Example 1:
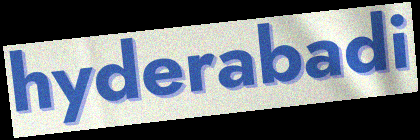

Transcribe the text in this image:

hyderabadi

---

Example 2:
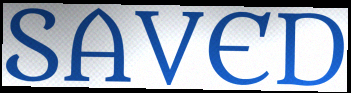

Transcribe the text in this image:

SAVED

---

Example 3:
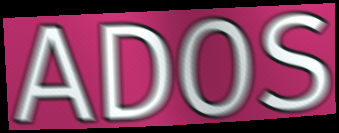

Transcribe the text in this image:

ADOS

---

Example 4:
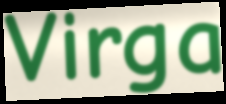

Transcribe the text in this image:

Virga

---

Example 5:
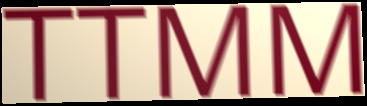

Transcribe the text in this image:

TTMM